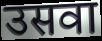
उसवा